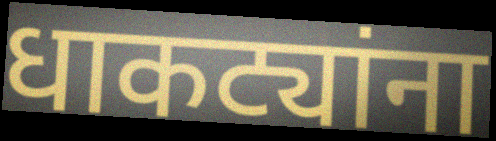
धाकट्यांना